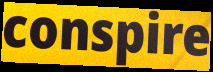
conspire